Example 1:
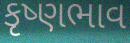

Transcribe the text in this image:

કૃષ્ણભાવ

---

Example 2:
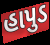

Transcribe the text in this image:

હાપુડ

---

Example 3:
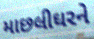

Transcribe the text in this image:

માછલીઘરને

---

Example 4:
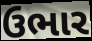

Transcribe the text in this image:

ઉભાર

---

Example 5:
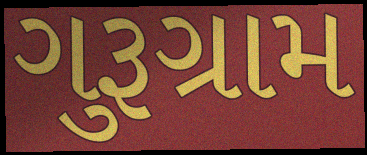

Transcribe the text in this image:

ગુરૂગ્રામ